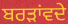
ਬਰੜਾਂਵਦੇ